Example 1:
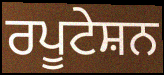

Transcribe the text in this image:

ਰਪੂਟੇਸ਼ਨ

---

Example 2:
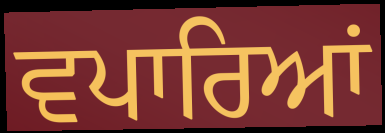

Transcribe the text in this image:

ਵਪਾਰਿਆਂ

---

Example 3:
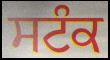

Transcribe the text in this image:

ਸਟੰਕ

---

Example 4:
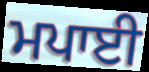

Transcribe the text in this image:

ਮਪਾਈ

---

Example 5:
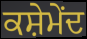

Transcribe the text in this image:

ਕਸ਼ੇਮੇਂਦ